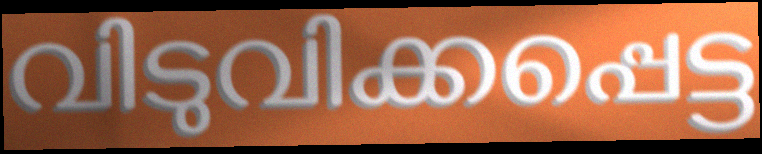
വിടുവിക്കപ്പെട്ട